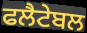
ਫਲੈਟੇਬਲ